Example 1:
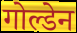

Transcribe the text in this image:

गोल्डेन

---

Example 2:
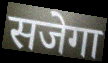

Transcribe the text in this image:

सजेगा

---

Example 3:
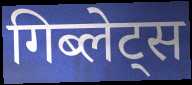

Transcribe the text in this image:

गिब्लेट्स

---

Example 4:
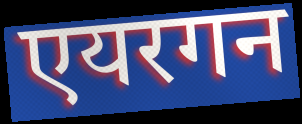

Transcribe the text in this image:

एयरगन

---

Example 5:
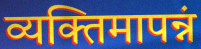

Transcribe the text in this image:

व्यक्तिमापन्नं